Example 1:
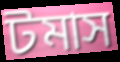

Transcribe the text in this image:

টমাস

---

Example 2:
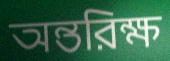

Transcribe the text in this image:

অন্তরিক্ষ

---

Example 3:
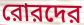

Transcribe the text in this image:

রোরদের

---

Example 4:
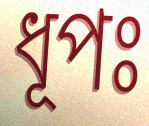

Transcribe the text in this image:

ধূপঃ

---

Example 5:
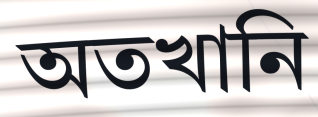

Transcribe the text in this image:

অতখানি